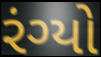
રંગ્યો